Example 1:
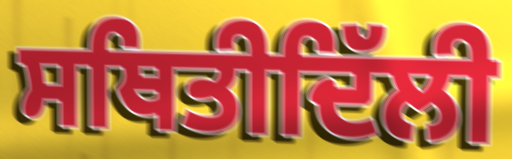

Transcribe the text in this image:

ਸਥਿਤੀਦਿੱਲੀ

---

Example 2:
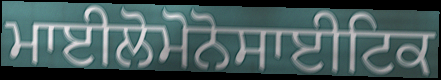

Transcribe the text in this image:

ਮਾਈਲੋਮੋਨੋਸਾਈਟਿਕ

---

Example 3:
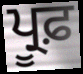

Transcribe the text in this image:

ਪ੍ਰੂਫ਼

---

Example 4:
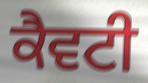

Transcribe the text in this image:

ਕੈਵਟੀ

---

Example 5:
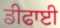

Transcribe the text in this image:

ਡੀਫਾਈ